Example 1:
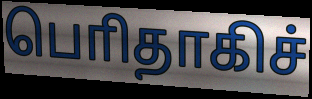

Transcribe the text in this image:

பெரிதாகிச்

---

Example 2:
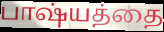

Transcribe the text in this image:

பாஷ்யத்தை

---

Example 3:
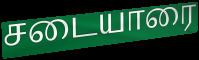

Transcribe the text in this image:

சடையாரை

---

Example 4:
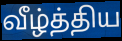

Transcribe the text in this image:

வீழ்த்திய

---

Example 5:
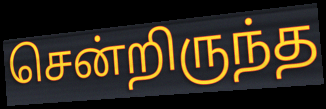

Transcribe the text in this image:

சென்றிருந்த